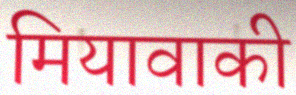
मियावाकी